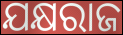
ଯକ୍ଷରାଜ